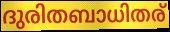
ദുരിതബാധിതര്